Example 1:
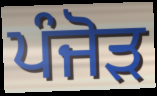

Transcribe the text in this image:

ਪੰਜੋੜ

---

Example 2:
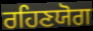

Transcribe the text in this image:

ਰਹਿਣਯੋਗ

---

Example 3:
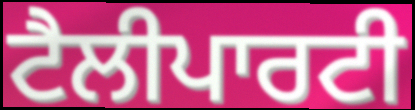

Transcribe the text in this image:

ਟੈਲੀਪਾਰਟੀ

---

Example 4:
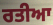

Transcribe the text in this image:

ਰਤੀਆ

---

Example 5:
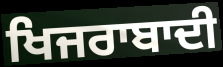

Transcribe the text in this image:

ਖਿਜਰਾਬਾਦੀ